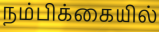
நம்பிக்கையில்